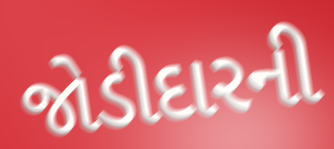
જોડીદારની